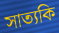
সাত্যকি